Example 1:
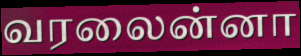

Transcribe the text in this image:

வரலைன்னா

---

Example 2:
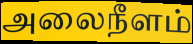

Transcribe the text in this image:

அலைநீளம்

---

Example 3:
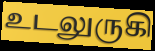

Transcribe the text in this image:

உடலுருகி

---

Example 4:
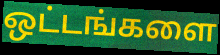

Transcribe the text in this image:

ஒட்டங்களை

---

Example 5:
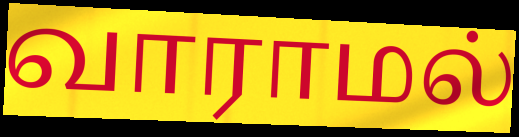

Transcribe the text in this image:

வாராமல்